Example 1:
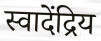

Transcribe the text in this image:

स्वादेंद्रिय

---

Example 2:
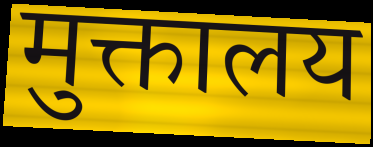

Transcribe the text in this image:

मुक्तालय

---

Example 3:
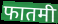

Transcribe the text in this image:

फातमी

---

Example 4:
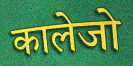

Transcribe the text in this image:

कालेजो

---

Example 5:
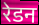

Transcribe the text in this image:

रेडन